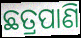
ଛତ୍ରପାଣି